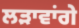
ਲੜਾਵਾਂਗੇ